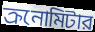
ক্রনোমিটার